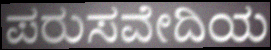
ಪರುಸವೇದಿಯ